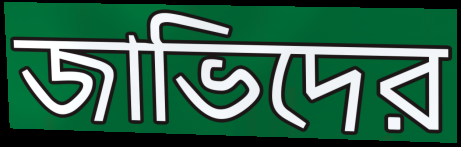
জাভিদের